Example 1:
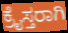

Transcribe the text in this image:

ಕ್ರೈಸ್ತರಾಗಿ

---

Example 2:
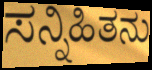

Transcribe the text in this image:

ಸನ್ನಿಹಿತನು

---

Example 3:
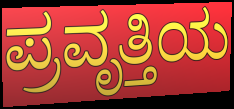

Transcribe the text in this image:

ಪ್ರವೃತ್ತಿಯ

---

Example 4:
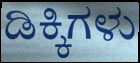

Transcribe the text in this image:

ಡಿಕ್ಕಿಗಳು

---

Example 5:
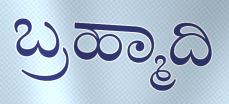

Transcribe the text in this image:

ಬ್ರಹ್ಮಾದಿ